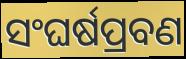
ସଂଘର୍ଷପ୍ରବଣ